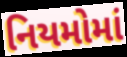
નિયમોમાં